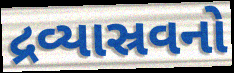
દ્રવ્યાસ્રવનો